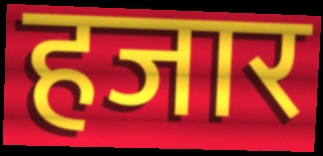
हजार